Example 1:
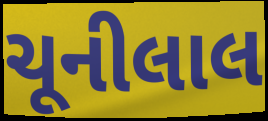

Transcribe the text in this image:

ચૂનીલાલ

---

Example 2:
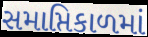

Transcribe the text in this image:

સમાપ્તિકાળમાં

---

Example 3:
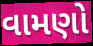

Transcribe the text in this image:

વામણો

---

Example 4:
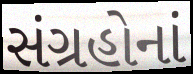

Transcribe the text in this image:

સંગ્રહોનાં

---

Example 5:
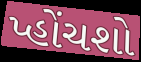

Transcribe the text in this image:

પ્હોંચશો